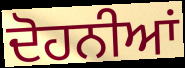
ਦੋਹਨੀਆਂ